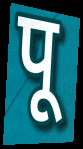
पू